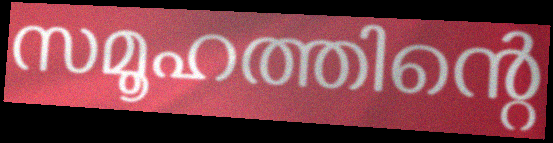
സമൂഹത്തിന്റെ